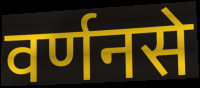
वर्णनसे